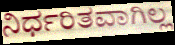
ನಿರ್ಧರಿತವಾಗಿಲ್ಲ